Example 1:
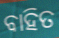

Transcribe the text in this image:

ବାହିତ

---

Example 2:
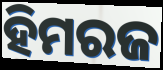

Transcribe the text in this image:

ହିମରଜ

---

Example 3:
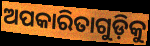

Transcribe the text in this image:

ଅପକାରିତାଗୁଡ଼ିକୁ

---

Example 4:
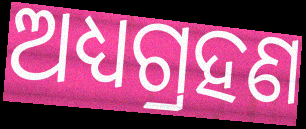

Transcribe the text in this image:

ଅଧ୍ୟଗ୍ରହଣ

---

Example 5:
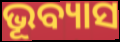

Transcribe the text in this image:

ଭୂବ୍ୟାସ